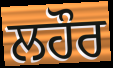
ਲਹੌਰ